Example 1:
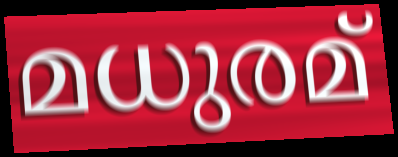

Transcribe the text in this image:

മധുരമ്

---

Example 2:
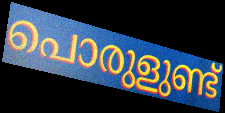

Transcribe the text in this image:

പൊരുളുണ്ട്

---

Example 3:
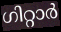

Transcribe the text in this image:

ഗിറ്റാർ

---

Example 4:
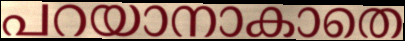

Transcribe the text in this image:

പറയാനാകാതെ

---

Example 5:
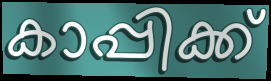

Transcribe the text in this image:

കാപ്പിക്ക്